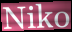
Niko